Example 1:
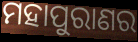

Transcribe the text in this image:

ମହାପୁରାଣର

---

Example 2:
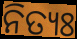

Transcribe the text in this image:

ନିତ୍ଯଃ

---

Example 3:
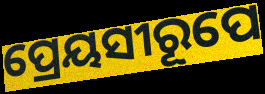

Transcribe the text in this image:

ପ୍ରେୟସୀରୂପେ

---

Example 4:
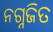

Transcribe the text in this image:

ନଗ୍ନଜିତ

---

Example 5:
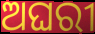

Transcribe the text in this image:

ଅଘରୀ